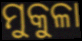
ମୁକୁଳା